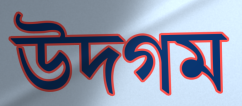
উদগম